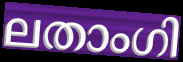
ലതാംഗി